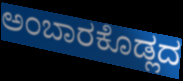
ಅಂಬಾರಕೊಡ್ಲದ